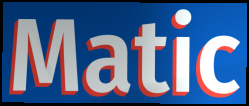
Matic